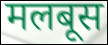
मलबूस